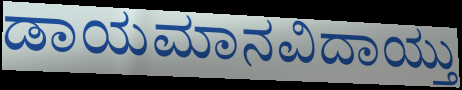
ಡಾಯಮಾನವಿದಾಯ್ತು